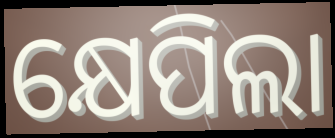
କ୍ଷେପିଲା